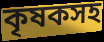
কৃষকসহ